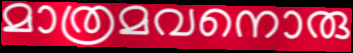
മാത്രമവനൊരു